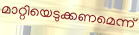
മാറ്റിയെടുക്കണമെന്ന്